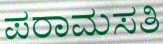
ಪರಾಮಸತಿ